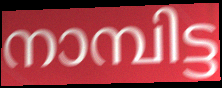
നാമ്പിട്ട